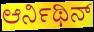
ಆರ್ನಿಥಿನ್